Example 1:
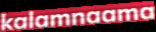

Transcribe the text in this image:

kalamnaama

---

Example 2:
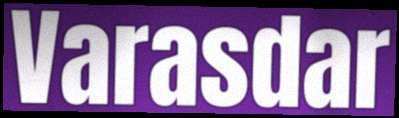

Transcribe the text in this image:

Varasdar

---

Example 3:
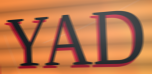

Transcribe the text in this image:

YAD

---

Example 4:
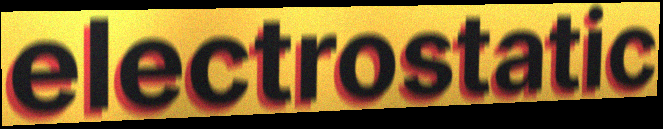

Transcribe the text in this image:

electrostatic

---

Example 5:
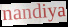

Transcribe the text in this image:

nandiya